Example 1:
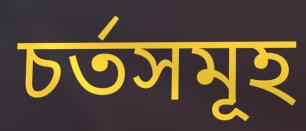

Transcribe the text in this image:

চৰ্তসমূহ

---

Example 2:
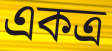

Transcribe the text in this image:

একত্ৰ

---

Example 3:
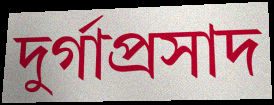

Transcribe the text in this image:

দুৰ্গাপ্ৰসাদ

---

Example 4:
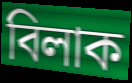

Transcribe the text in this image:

বিলাক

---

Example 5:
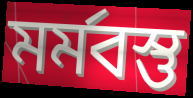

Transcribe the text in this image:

মৰ্মবস্তু